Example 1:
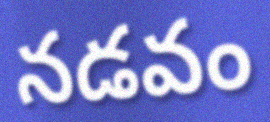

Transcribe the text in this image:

నడవం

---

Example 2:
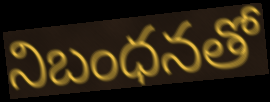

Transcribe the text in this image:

నిబంధనతో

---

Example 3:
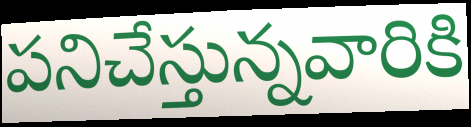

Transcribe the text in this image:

పనిచేస్తున్నవారికి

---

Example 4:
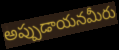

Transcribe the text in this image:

అప్పుడాయనమీరు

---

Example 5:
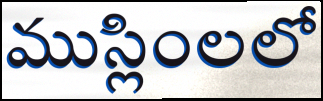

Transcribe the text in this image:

ముస్లింలలో